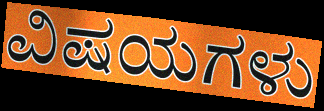
ವಿಷಯಗಳು